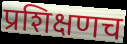
प्रशिक्षणच